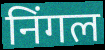
निंगल